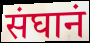
संघानं